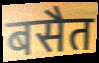
बसैत